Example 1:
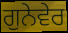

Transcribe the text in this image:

ਗੁਨੇਵੇਰ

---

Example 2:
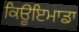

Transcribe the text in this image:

ਕਿਊਇਮਾਡਾ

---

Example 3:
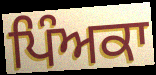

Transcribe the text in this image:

ਪਿੰਅਕਾ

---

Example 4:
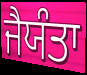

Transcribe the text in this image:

ਜੈਯੰਤਾ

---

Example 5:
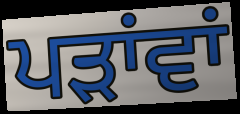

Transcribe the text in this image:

ਪੜਾਂਵਾਂ